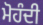
ਮੋਹੰਦੀ